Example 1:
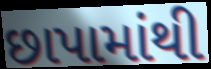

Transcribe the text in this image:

છાપામાંથી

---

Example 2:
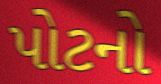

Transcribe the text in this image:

પોટનો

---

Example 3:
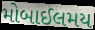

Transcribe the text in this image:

મોબાઈલમય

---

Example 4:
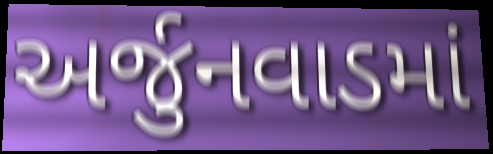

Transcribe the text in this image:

અર્જુનવાડમાં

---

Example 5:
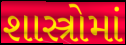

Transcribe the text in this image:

શાસ્ત્રોમાં